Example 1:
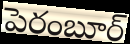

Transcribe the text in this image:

పెరంబూర్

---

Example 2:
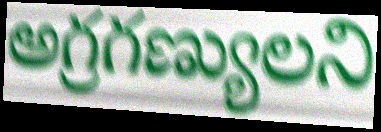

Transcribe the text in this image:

అగ్రగణ్యులని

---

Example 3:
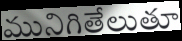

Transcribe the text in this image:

మునిగితేలుతూ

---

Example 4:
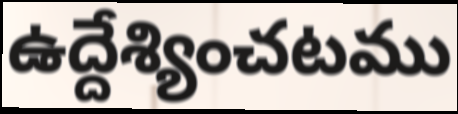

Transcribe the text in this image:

ఉద్దేశ్యించటము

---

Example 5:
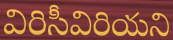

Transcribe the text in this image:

విరిసీవిరియని